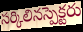
సర్కిలినస్పెక్టరు